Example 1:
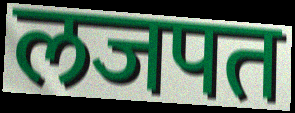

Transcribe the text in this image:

लजपत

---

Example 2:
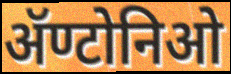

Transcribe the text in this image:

ॲण्टोनिओ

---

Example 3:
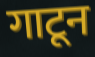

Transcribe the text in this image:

गाटून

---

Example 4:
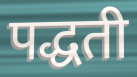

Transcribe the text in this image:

पद्धती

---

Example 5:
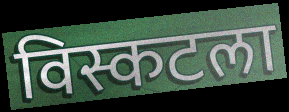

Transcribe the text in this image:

विस्कटला